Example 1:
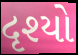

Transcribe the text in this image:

દૃશ્યો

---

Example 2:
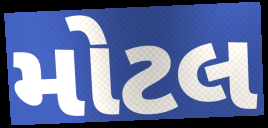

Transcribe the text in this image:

મોટલ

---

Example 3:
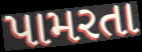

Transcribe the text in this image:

પામરતા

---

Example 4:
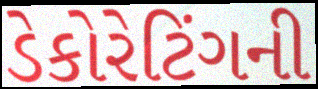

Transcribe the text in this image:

ડેકોરેટિંગની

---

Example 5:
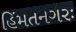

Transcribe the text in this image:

હિંમતનગરઃ